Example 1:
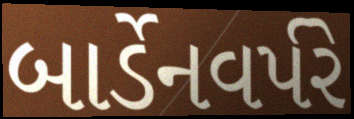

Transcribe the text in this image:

બાર્ડેનવર્પરે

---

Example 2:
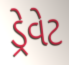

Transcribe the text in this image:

ડ્રેવેટ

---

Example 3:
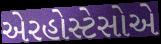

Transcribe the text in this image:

એરહોસ્ટેસોએ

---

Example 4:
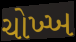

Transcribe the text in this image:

ચોખ્ખ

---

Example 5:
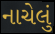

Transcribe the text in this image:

નાચેલું